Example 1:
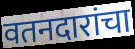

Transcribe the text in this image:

वतनदारांचा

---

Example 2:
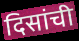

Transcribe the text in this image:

दिसांची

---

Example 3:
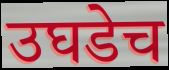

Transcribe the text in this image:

उघडेच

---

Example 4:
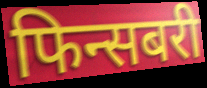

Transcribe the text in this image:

फिन्सबरी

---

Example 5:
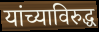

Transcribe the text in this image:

यांच्याविरुद्ध